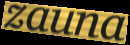
zauna